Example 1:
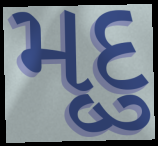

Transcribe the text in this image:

મૃદુ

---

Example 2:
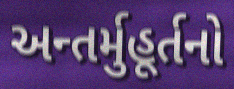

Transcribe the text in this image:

અન્તર્મુહૂર્તનો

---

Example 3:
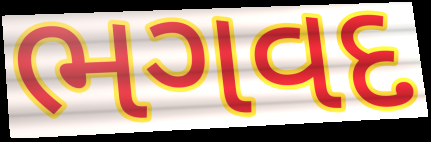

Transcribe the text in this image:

ભગવદ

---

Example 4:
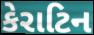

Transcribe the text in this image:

કેરાટિન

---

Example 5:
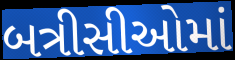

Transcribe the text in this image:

બત્રીસીઓમાં